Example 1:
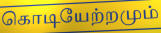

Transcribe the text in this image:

கொடியேற்றமும்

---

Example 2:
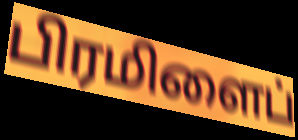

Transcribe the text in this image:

பிரமிளைப்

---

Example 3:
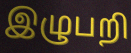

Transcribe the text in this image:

இழுபறி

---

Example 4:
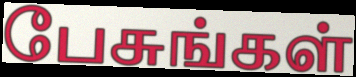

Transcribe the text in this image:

பேசுங்கள்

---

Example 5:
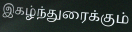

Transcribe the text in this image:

இகழ்ந்துரைக்கும்